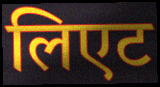
लिएट